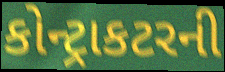
કોન્ટ્રાકટરની